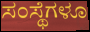
ಸಂಸ್ಥೆಗಳೂ